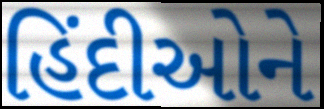
હિંદીઓને